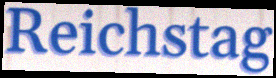
Reichstag